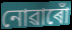
নোৱাৰোঁ